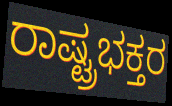
ರಾಷ್ಟ್ರಭಕ್ತರ